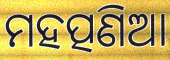
ମହତ୍ପଣିଆ